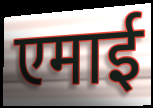
एमाई